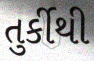
તુર્કીથી